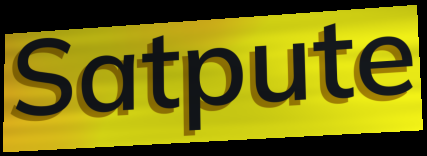
Satpute